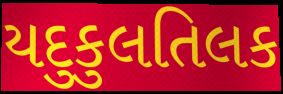
યદુકુલતિલક